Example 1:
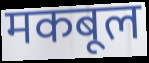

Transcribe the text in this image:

मकबूल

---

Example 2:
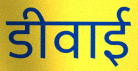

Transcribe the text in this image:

डीवाई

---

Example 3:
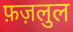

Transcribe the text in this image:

फ़ज़लुल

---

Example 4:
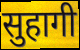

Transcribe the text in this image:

सुहागी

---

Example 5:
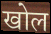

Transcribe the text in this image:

खोल